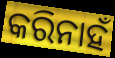
କରିନାହଁ